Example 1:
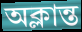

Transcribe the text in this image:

অক্লান্ত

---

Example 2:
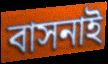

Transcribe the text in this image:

বাসনাই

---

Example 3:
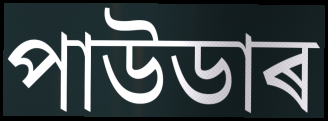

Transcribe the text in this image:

পাউডাৰ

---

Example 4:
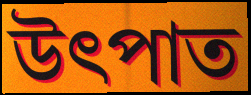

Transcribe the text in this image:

উৎপাত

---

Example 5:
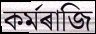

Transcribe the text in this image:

কৰ্মৰাজি